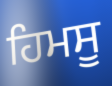
ਹਿਮਸੂ